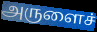
அருளைச்